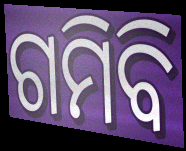
ଗମିବି